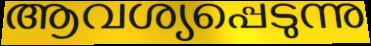
ആവശ്യപ്പെടുന്നു